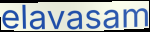
elavasam